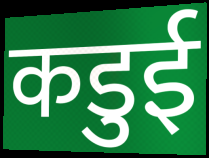
कडुई